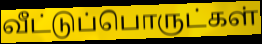
வீட்டுப்பொருட்கள்